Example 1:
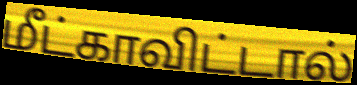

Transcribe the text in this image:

மீட்காவிட்டால்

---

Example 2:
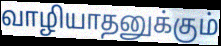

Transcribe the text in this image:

வாழியாதனுக்கும்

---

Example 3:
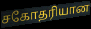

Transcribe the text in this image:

சகோதரியான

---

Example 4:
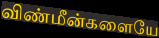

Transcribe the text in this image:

விண்மீன்களையே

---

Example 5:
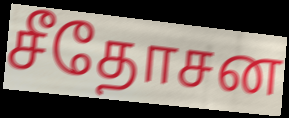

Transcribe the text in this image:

சீதோசன